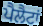
ਪੈਲੈਟਾਂ